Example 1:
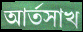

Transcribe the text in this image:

আর্তসাখ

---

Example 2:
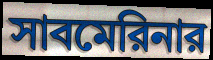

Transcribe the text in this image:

সাবমেরিনার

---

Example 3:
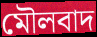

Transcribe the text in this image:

মৌলবাদ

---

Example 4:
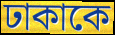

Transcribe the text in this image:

ঢাকাকে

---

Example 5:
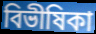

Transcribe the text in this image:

বিভীষিকা